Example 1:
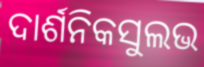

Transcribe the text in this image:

ଦାର୍ଶନିକସୁଲଭ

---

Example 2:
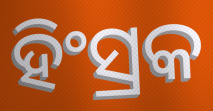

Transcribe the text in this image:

ହିଂସ୍ରକ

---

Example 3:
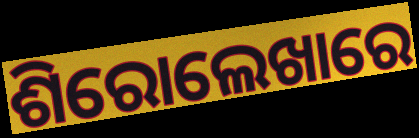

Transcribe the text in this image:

ଶିରୋଲେଖାରେ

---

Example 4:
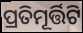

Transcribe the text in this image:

ପ୍ରତିମୂର୍ତ୍ତିଟି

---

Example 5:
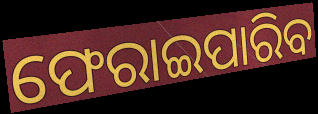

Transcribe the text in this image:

ଫେରାଇପାରିବ